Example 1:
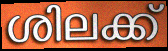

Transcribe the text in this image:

ശിലക്ക്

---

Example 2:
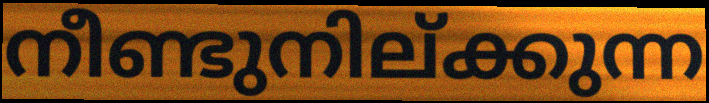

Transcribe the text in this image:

നീണ്ടുനില്ക്കുന്ന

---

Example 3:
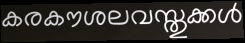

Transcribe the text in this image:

കരകൗശലവസ്തുക്കൾ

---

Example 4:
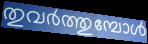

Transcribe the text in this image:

തുവർത്തുമ്പോൾ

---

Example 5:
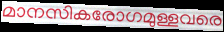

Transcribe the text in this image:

മാനസികരോഗമുള്ളവരെ